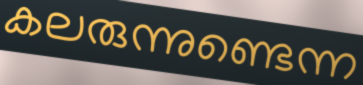
കലരുന്നുണ്ടെന്ന